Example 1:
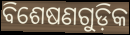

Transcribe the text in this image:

ବିଶେଷଣଗୁଡ଼ିକ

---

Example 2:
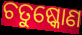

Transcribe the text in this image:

ଚତୁଷ୍କୋଣ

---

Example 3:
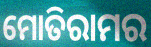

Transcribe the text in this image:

ମୋତିରାମର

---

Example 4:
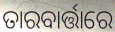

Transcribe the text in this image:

ତାରବାର୍ତ୍ତାରେ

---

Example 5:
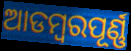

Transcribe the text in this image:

ଆଡମ୍ବରପୂର୍ଣ୍ଣ